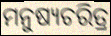
ମନୁଷ୍ୟଚରିତ୍ର